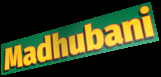
Madhubani